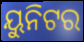
ୟୁନିଟର